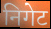
निगेट